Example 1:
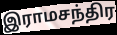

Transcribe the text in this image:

இராமசந்திர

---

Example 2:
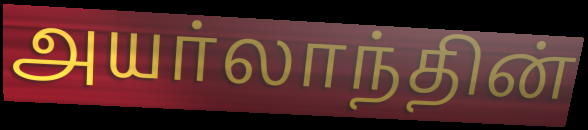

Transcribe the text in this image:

அயர்லாந்தின்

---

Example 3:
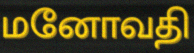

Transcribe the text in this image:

மனோவதி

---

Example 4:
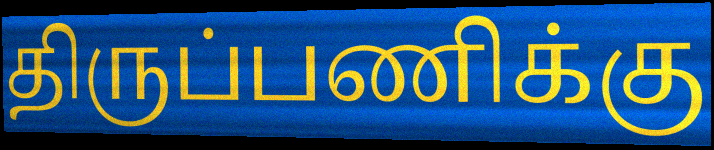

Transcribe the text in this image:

திருப்பணிக்கு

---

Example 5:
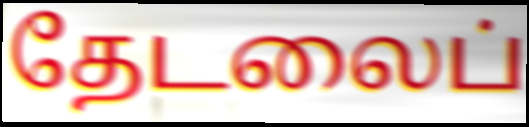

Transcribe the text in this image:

தேடலைப்